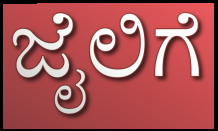
ಜೈಲಿಗೆ